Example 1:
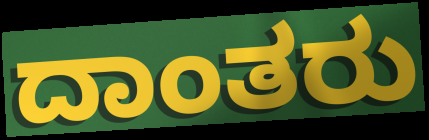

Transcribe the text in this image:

ದಾಂತರು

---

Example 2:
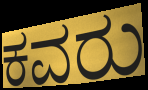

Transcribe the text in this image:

ಕವರು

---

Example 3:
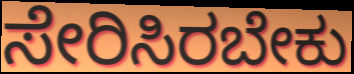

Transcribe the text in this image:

ಸೇರಿಸಿರಬೇಕು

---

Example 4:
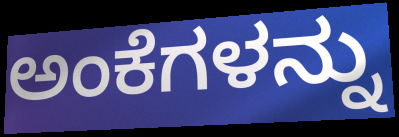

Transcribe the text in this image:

ಅಂಕೆಗಳನ್ನು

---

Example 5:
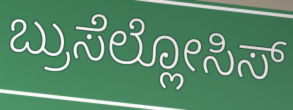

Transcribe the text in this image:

ಬ್ರುಸೆಲ್ಲೋಸಿಸ್